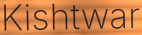
Kishtwar